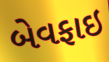
બેવફાઇ